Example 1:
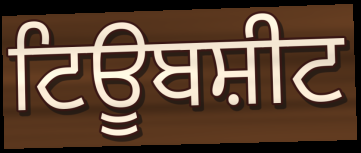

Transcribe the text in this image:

ਟਿਊਬਸ਼ੀਟ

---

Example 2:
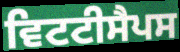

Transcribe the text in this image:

ਵਿਟਟੀਸੈਪਸ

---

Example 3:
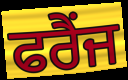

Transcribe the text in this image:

ਫਰੈਂਜ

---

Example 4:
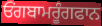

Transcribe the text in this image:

ਓਂਗਬਾਮਰੂੰਗਫਾਨ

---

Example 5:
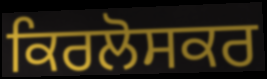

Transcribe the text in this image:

ਕਿਰਲੋਸਕਰ